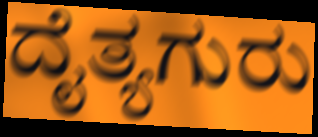
ದೈತ್ಯಗುರು